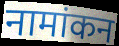
नामांकन